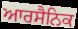
ਆਰਸੈਨਿਕ